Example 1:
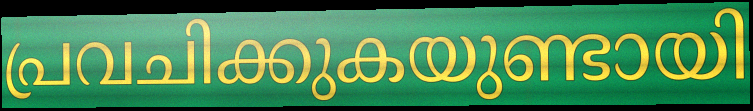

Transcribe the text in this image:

പ്രവചിക്കുകയുണ്ടായി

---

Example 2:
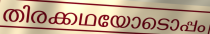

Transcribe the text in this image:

തിരക്കഥയോടൊപ്പം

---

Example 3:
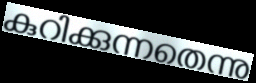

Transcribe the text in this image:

കുറിക്കുന്നതെന്നു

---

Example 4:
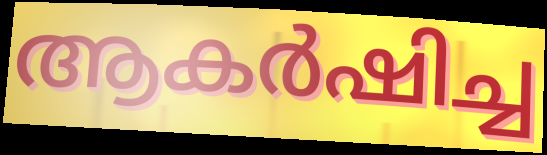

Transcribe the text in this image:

ആകർഷിച്ച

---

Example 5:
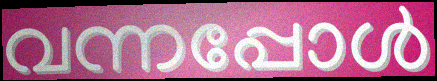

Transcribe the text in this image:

വന്നപ്പോൾ